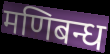
मणिबन्ध